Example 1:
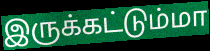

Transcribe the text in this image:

இருக்கட்டும்மா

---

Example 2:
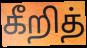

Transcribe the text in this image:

கீறித்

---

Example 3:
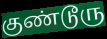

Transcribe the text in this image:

குண்டூரு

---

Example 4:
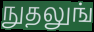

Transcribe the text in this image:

நுதலுங்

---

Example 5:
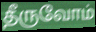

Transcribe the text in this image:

தீருவோம்